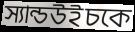
স্যান্ডউইচকে